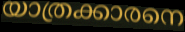
യാത്രക്കാരനെ